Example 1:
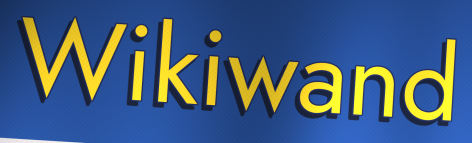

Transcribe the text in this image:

Wikiwand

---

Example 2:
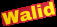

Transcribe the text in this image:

Walid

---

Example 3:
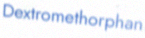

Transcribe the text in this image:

Dextromethorphan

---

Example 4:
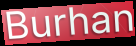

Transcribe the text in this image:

Burhan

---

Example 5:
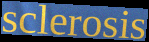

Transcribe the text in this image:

sclerosis